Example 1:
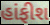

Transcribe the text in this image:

હાંફીશ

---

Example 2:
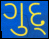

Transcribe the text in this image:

ગુદ્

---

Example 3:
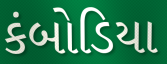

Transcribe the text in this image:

કંબોડિયા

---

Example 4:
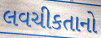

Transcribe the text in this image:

લવચીકતાનો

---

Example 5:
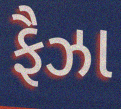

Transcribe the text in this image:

ફૈઝા